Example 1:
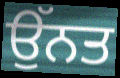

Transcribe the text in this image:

ਉੱਨਤ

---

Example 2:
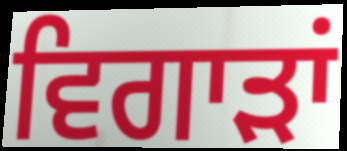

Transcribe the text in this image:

ਵਿਗਾੜਾਂ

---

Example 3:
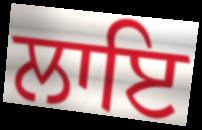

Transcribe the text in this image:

ਲਾਇ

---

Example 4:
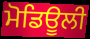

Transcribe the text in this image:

ਮੋਡਿਊਲੀ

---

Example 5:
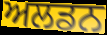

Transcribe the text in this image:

ਅਲਡਨ